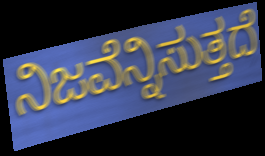
ನಿಜವೆನ್ನಿಸುತ್ತದೆ